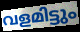
വളമിട്ടും